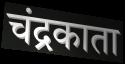
चंद्रकाता